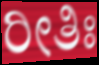
ರೀತಿಃ